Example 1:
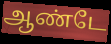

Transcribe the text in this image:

ஆண்டே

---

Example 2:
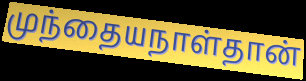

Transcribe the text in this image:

முந்தையநாள்தான்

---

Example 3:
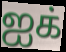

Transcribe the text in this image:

ஐக்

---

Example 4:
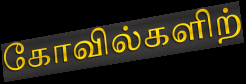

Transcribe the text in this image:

கோவில்களிற்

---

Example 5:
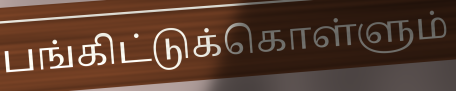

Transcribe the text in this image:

பங்கிட்டுக்கொள்ளும்